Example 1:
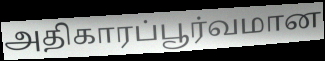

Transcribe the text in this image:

அதிகாரப்பூர்வமான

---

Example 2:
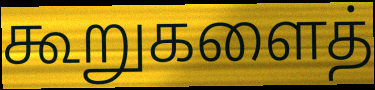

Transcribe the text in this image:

கூறுகளைத்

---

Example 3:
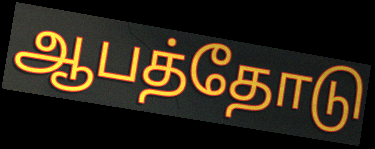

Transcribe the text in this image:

ஆபத்தோடு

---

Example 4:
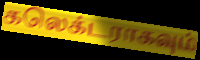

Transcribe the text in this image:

கலெக்டராகவும்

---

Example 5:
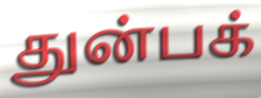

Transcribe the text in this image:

துன்பக்